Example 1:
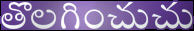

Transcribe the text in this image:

తొలగించుచు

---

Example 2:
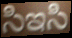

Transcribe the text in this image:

సిఇసి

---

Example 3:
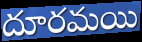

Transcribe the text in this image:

దూరమయి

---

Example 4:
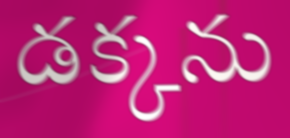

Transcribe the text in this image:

డక్కను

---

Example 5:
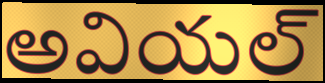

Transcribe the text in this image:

అవియల్